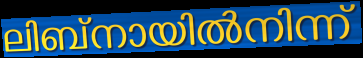
ലിബ്നായിൽനിന്ന്